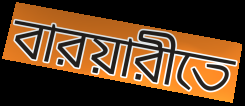
বারয়ারীতে